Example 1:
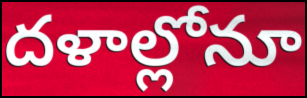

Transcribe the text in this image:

దళాల్లోనూ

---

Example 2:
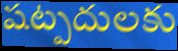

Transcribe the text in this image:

షట్పదులకు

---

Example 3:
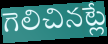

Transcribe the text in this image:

గెలిచినట్లే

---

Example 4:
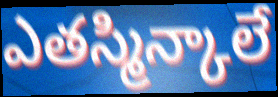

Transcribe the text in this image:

ఎతస్మిన్కాలే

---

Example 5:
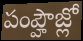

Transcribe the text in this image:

పంప్హౌజ్లో